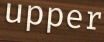
upper